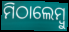
ମିଠାଲେମ୍ବୁ